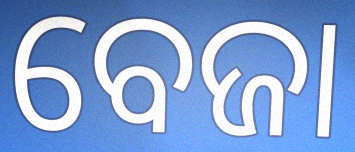
ବେଜା